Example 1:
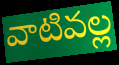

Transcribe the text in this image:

వాటివల్ల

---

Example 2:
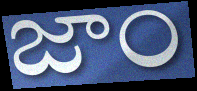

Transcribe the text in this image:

జాం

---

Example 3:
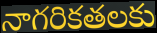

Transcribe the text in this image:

నాగరికతలకు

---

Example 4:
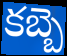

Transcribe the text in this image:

కబ్బె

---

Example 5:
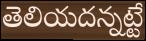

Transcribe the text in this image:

తెలియదన్నట్టే